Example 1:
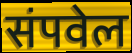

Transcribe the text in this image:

संपवेल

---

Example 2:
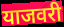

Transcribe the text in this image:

याजवरी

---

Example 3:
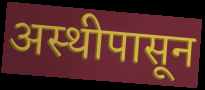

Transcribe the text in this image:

अस्थीपासून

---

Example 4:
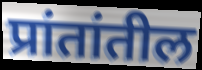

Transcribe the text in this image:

प्रांतांतील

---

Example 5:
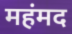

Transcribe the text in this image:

महंमद